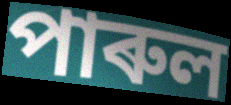
পাৰুল